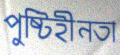
পুষ্টিহীনতা